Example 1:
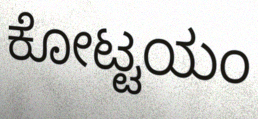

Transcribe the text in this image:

ಕೋಟ್ಟಯಂ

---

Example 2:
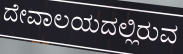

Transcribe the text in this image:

ದೇವಾಲಯದಲ್ಲಿರುವ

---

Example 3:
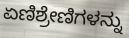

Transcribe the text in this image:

ಏಣಿಶ್ರೇಣಿಗಳನ್ನು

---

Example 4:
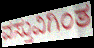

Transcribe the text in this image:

ವಸ್ತುವಿಗಿಂತ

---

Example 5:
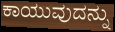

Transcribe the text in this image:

ಕಾಯುವುದನ್ನು